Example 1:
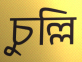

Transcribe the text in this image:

চুল্লি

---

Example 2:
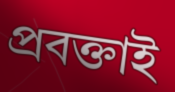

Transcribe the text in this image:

প্রবক্তাই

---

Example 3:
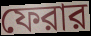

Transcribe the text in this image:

ফেরার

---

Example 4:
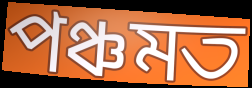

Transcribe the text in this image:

পঞ্চমত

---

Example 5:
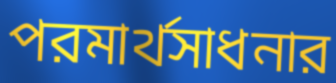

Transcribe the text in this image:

পরমার্থসাধনার